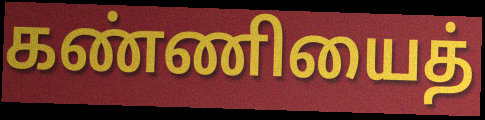
கண்ணியைத்